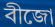
বীজো